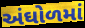
અંઘોળમાં